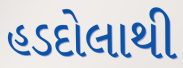
હડદોલાથી